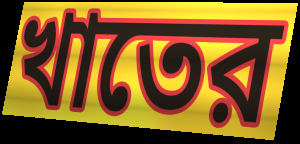
খাতের